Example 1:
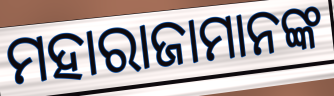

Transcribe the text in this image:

ମହାରାଜାମାନଙ୍କ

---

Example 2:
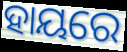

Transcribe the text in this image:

ହାୟରେ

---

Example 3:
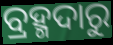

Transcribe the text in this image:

ବ୍ରହ୍ମଦାରୁ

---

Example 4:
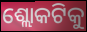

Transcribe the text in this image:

ଶ୍ଲୋକଟିକୁ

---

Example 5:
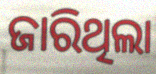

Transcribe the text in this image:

ଜାରିଥିଲା